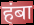
हंबा